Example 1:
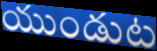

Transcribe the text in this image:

యుండుట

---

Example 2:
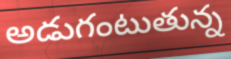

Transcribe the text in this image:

అడుగంటుతున్న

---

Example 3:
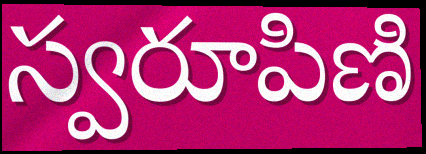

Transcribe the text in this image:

స్వరూపిణి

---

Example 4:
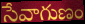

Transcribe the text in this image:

సేవాగుణం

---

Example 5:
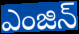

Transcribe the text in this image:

ఎంజిన్